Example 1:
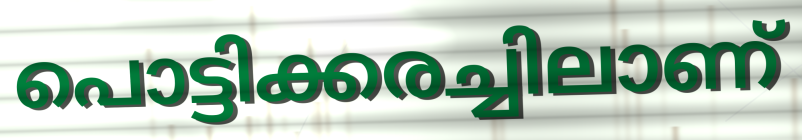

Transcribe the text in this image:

പൊട്ടിക്കരച്ചിലാണ്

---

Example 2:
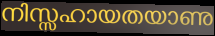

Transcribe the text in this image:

നിസ്സഹായതയാണു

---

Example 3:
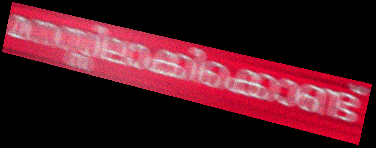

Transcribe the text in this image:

മനസ്സിലാക്കിക്കൊണ്ട്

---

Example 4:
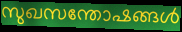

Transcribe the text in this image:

സുഖസന്തോഷങ്ങൾ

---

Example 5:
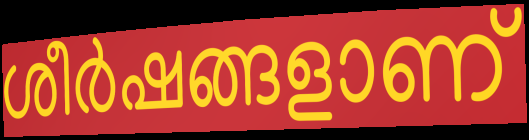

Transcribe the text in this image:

ശീർഷങ്ങളാണ്